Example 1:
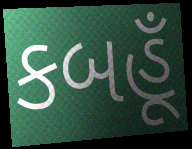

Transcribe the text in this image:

કબહૂઁ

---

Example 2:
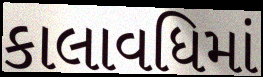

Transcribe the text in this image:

કાલાવધિમાં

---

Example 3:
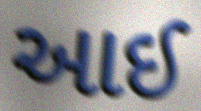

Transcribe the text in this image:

આઈ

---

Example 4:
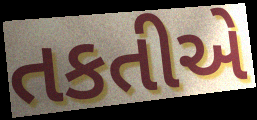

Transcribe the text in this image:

તકતીએ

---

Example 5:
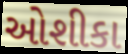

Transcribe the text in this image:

ઓશીકા